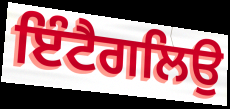
ਇੰਟੈਗਲਿਉ